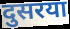
दुसरया